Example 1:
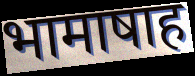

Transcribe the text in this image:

भामाषाह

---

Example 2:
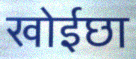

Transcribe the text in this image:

खोईछा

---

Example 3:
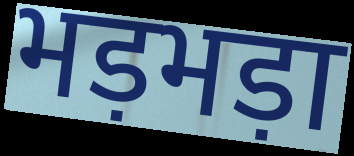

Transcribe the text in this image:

भड़भड़ा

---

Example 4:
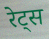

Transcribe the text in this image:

रेट्स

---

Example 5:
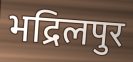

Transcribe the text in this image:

भद्रिलपुर